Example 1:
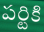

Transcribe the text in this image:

పర్టికి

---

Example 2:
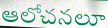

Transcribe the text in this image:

ఆలోచనలూ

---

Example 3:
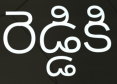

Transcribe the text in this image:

రెడ్డికి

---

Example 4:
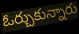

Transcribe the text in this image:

ఓర్చుకున్నారు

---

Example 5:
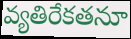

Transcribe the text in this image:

వ్యతిరేకతనూ